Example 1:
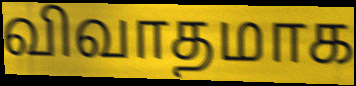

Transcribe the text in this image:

விவாதமாக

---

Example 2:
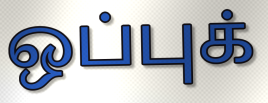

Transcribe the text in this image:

ஒப்புக்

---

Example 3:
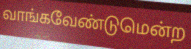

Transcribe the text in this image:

வாங்கவேண்டுமென்ற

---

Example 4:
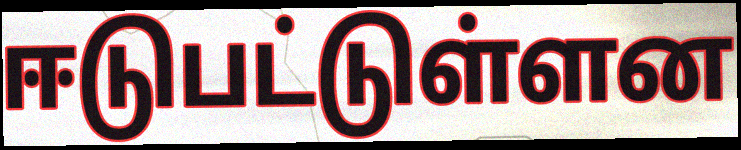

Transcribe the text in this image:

ஈடுபட்டுள்ளன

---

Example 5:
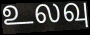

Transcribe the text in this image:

உலவு